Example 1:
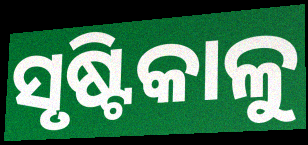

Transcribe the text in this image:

ସୃଷ୍ଟିକାଳୁ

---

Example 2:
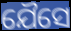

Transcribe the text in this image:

ଯୈସେ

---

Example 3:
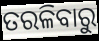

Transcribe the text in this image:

ତରଳିବାରୁ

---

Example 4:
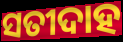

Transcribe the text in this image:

ସତୀଦାହ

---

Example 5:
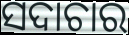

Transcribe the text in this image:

ସଦାଚାର